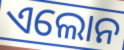
ଏଲୋନ